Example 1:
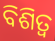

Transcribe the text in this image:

ବିଶିତ୍ଵ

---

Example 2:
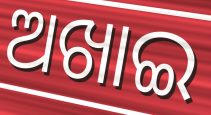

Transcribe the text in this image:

ଅଖାଇ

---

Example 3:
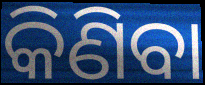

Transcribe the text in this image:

କିଣିବା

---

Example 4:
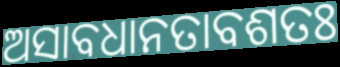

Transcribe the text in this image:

ଅସାବଧାନତାବଶତଃ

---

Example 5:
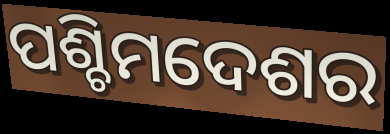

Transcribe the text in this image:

ପଶ୍ଚିମଦେଶର